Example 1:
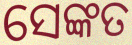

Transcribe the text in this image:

ସେଙ୍କତ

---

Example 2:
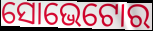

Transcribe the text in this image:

ସୋଭେଟୋର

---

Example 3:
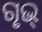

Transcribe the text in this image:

ଗୃଭ୍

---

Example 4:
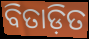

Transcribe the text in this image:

ବିତାଡ଼ିତ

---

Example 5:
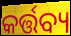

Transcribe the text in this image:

କର୍ତ୍ତବ୍ୟ